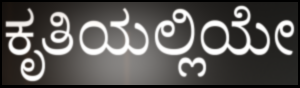
ಕೃತಿಯಲ್ಲಿಯೇ